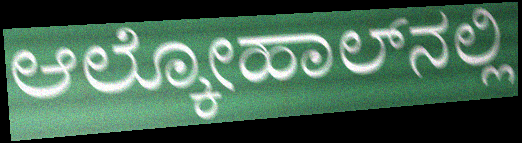
ಆಲ್ಕೋಹಾಲ್‌ನಲ್ಲಿ